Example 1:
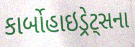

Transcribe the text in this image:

કાર્બોહાઇડ્રેટ્સના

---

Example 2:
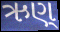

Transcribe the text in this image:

ઋણ્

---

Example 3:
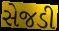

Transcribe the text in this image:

સેજડી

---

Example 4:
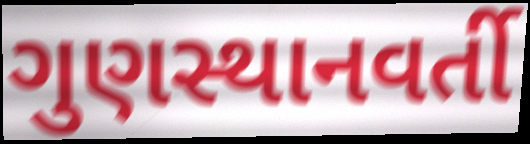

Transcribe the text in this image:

ગુણસ્થાનવર્તી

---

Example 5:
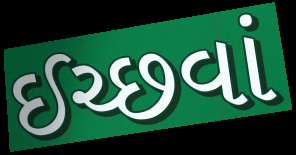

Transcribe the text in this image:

ઈચ્છવાં